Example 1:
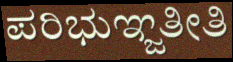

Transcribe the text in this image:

ಪರಿಭುಞ್ಜತೀತಿ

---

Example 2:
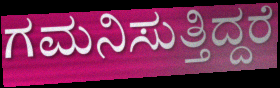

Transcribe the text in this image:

ಗಮನಿಸುತ್ತಿದ್ದರೆ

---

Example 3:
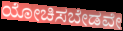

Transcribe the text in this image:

ಯೋಚಿಸಬೇಡವೇ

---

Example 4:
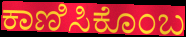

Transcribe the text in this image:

ಕಾಣಿಸಿಕೊಂಬ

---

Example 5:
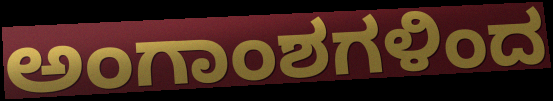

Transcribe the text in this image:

ಅಂಗಾಂಶಗಳಿಂದ